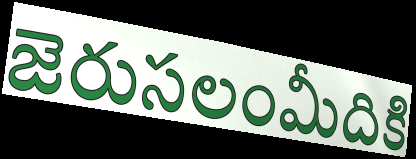
జెరుసలంమీదికి